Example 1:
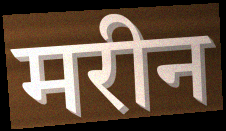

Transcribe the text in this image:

मरीन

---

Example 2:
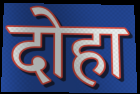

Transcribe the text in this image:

दोहा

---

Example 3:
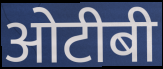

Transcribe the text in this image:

ओटीबी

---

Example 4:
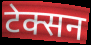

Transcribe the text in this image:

टेक्सन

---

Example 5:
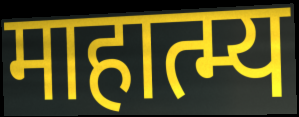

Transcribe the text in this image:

माहात्म्य